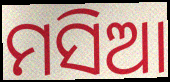
ମସିଆ